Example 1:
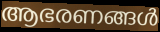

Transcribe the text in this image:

ആഭരണങ്ങൾ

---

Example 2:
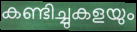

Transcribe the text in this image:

കണ്ടിച്ചുകളയും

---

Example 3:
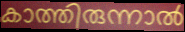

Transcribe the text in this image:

കാത്തിരുന്നാൽ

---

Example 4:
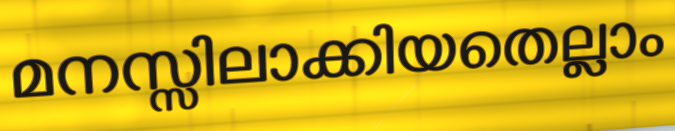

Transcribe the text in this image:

മനസ്സിലാക്കിയതെല്ലാം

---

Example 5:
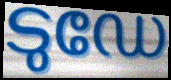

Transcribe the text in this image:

ടുഡേ